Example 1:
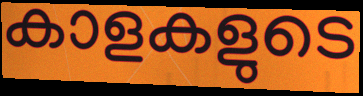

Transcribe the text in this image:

കാളകളുടെ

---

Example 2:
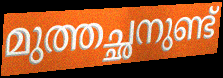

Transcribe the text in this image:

മുത്തച്ഛനുണ്ട്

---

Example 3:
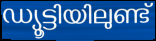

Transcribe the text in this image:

ഡ്യൂട്ടിയിലുണ്ട്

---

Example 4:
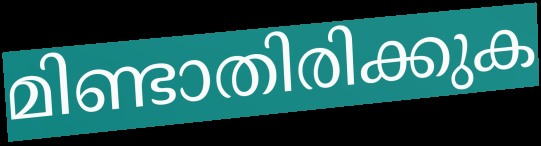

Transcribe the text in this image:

മിണ്ടാതിരിക്കുക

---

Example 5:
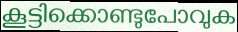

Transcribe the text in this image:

കൂട്ടിക്കൊണ്ടുപോവുക